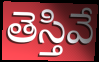
తెస్తివే